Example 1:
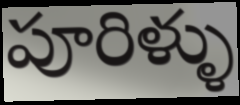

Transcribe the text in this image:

పూరిళ్ళు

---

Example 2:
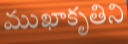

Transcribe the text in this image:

ముఖాకృతిని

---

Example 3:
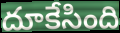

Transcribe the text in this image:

దూకేసింది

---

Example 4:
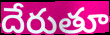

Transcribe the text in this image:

దేరుతూ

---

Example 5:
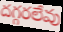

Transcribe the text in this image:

దగ్గరలేవు